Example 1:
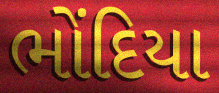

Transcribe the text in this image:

ભોંદિયા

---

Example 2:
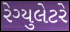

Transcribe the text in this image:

રેગ્યુલેટરે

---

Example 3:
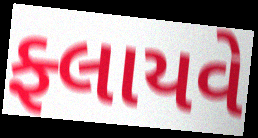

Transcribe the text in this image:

ફ્લાયવે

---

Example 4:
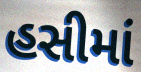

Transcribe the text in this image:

હસીમાં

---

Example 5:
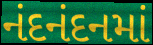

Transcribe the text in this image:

નંદનંદનમાં